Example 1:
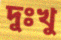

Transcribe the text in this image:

দুঃখু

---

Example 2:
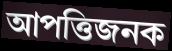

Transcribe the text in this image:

আপত্তিজনক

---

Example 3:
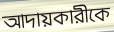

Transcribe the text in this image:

আদায়কারীকে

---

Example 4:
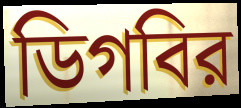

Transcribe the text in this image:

ডিগবির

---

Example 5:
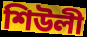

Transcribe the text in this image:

শিউলী